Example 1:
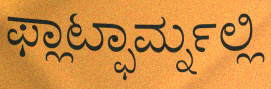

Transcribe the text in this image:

ಫ್ಲಾಟ್ಫಾರ್ಮ್ನಲ್ಲಿ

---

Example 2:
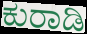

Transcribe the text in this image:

ಕುರಾಡಿ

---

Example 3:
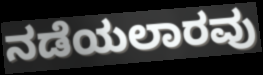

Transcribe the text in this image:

ನಡೆಯಲಾರವು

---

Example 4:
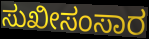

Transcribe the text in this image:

ಸುಖೀಸಂಸಾರ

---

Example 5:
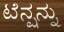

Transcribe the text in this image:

ಟೆನ್ಷನ್ನು